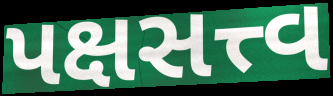
પક્ષસત્ત્વ